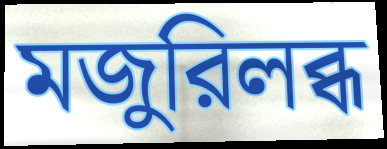
মজুরিলব্ধ